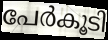
പേർകൂടി